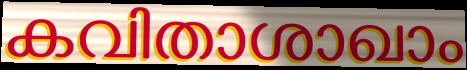
കവിതാശാഖാം